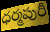
ధర్మపురీ